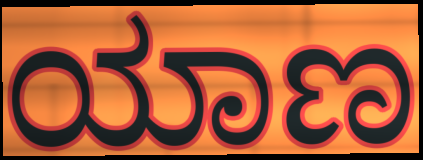
ಯಾಣ